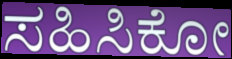
ಸಹಿಸಿಕೋ